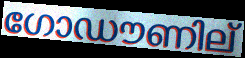
ഗോഡൗണില്